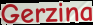
Gerzina